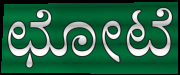
ಛೋಟೆ